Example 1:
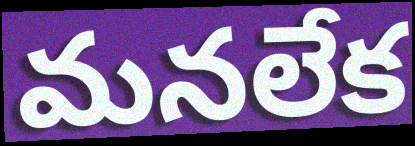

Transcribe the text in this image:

మనలేక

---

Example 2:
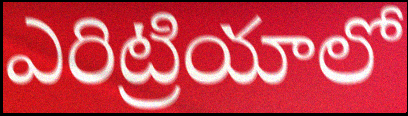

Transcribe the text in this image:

ఎరిట్రియాలో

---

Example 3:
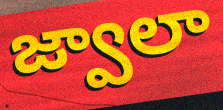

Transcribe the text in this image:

జ్వాలా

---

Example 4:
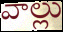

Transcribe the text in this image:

వాల్లు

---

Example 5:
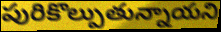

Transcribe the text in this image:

పురికొల్పుతున్నాయని